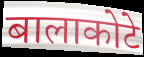
बालाकोटे